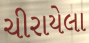
ચીરાયેલા